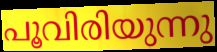
പൂവിരിയുന്നു